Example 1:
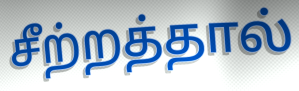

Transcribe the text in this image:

சீற்றத்தால்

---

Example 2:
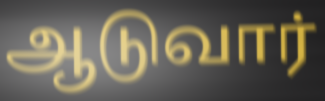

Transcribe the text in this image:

ஆடுவார்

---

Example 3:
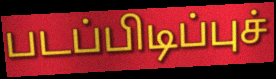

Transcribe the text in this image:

படப்பிடிப்புச்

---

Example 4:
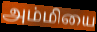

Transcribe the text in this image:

அம்மியை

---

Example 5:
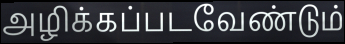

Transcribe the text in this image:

அழிக்கப்படவேண்டும்